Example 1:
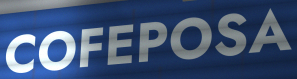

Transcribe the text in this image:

COFEPOSA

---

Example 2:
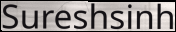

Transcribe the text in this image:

Sureshsinh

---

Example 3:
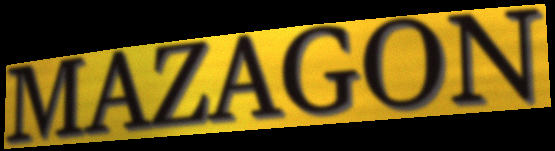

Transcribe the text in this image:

MAZAGON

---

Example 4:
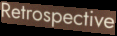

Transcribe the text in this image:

Retrospective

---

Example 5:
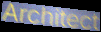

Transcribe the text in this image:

Architect